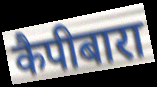
कैपीबारा